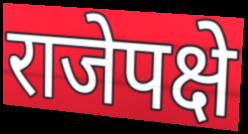
राजेपक्षे